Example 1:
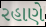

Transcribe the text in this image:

રહાણે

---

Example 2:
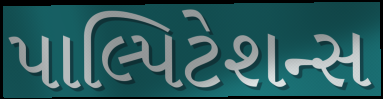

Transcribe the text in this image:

પાલ્પિટેશન્સ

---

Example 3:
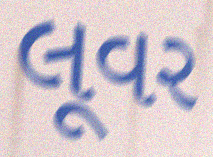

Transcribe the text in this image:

લૂવર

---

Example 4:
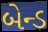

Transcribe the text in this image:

બેન્ડ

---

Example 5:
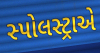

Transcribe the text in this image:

સ્પોલસ્ટ્રાએ